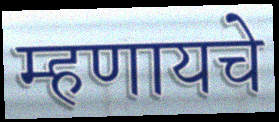
म्हणायचे